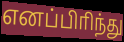
எனப்பிரிந்து